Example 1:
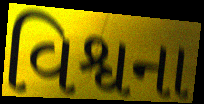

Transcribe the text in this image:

વિશ્વના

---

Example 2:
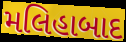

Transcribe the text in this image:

મલિહાબાદ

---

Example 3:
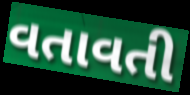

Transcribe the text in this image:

વતાવતી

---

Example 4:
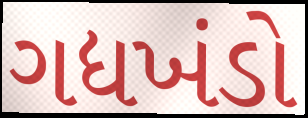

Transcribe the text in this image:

ગદ્યખંડો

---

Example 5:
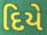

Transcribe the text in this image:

દિયે